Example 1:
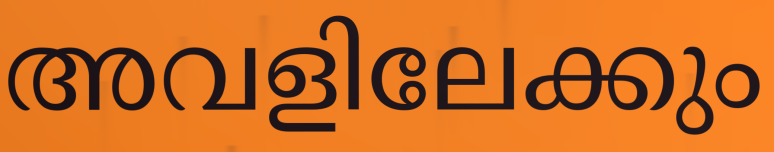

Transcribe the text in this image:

അവളിലേക്കും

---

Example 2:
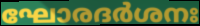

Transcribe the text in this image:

ഘോരദർശനഃ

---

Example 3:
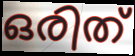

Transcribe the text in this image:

ഒരിത്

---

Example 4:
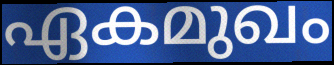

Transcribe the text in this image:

ഏകമുഖം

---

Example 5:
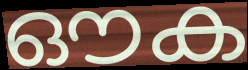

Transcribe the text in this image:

ഔക